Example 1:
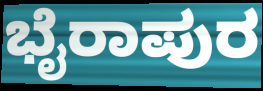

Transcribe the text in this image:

ಭೈರಾಪುರ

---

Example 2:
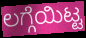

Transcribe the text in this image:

ಲಗ್ಗೆಯಿಟ್ಟ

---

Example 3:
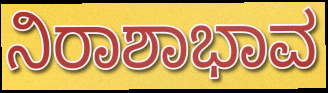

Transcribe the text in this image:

ನಿರಾಶಾಭಾವ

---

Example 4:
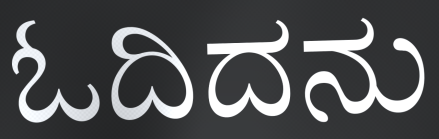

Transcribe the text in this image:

ಓದಿದನು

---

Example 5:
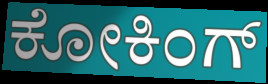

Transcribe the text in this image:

ಕೋಕಿಂಗ್